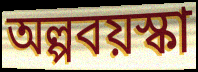
অল্পবয়স্কা